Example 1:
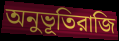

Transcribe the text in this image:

অনুভূতিরাজি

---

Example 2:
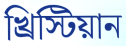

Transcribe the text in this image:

খ্রিস্টিয়ান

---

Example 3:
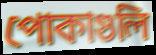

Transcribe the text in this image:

পোকাগুলি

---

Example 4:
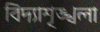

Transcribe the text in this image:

বিদ্যাশৃঙ্খলা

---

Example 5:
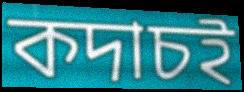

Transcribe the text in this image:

কদাচই